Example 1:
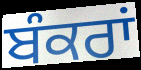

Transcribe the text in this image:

ਬੰਕਰਾਂ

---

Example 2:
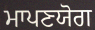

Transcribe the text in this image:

ਮਾਪਣਯੋਗ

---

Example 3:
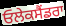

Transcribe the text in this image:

ਓਲੇਕਸੈਂਡਰਾ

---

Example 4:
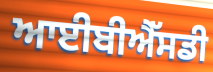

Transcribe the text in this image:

ਆਈਬੀਐੱਸਡੀ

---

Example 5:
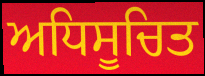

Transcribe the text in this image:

ਅਧਿਸੂਚਿਤ